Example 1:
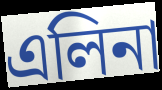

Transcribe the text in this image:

এলিনা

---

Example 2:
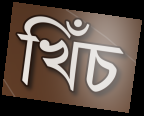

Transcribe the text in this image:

খিঁচ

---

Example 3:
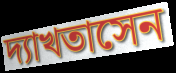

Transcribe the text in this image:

দ্যাখতাসেন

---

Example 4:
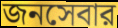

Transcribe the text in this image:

জনসেবার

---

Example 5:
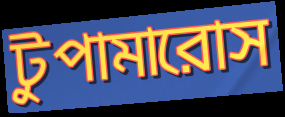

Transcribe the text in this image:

টুপামারোস